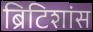
ब्रिटिशांस